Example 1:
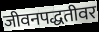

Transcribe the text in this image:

जीवनपद्धतीवर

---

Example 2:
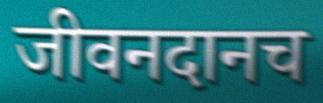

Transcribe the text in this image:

जीवनदानच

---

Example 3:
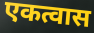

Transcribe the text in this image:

एकत्वास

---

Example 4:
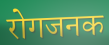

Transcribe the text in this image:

रोगजनक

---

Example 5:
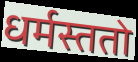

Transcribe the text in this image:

धर्मस्ततो